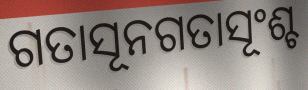
ଗତାସୂନଗତାସୂଂଶ୍ଚ